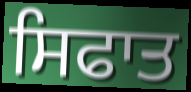
ਸਿਫਾਤ